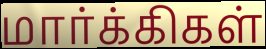
மார்க்கிகள்